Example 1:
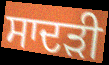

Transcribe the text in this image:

ਸਾਦੜੀ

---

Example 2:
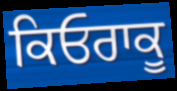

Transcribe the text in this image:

ਕਿਓਰਾਕੂ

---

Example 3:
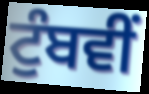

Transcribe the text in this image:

ਟੁੰਬਵੀਂ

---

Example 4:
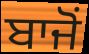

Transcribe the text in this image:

ਬਾਜੋਂ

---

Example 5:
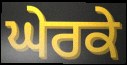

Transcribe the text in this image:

ਘੇਰਕੇ